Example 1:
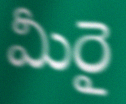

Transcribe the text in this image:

మీరై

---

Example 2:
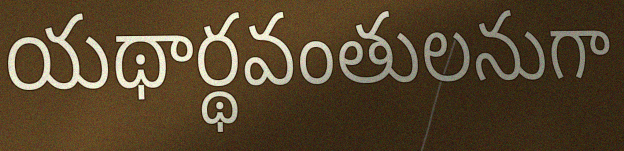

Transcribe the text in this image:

యథార్థవంతులనుగా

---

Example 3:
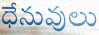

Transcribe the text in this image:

ధేనువులు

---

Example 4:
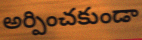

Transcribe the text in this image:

అర్పించకుండా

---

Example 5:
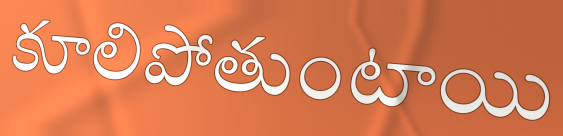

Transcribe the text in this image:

కూలిపోతుంటాయి